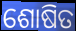
ଶୋଷିତ